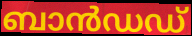
ബാൻഡഡ്